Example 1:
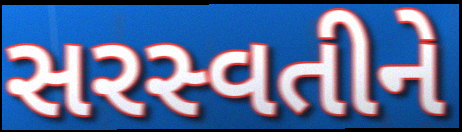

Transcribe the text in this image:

સરસ્વતીને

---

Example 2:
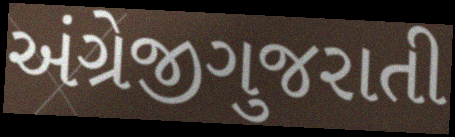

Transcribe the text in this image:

અંગ્રેજીગુજરાતી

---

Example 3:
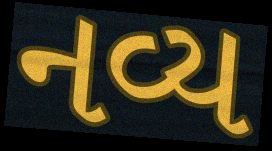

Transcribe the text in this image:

નવ્ય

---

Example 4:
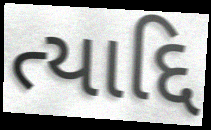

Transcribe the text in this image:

ત્યાદ્દિ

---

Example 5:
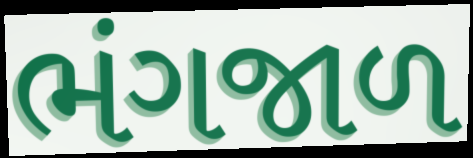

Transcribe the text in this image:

ભંગજાળ